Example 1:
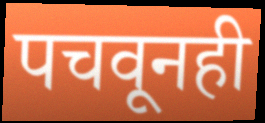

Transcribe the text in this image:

पचवूनही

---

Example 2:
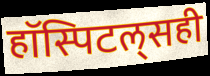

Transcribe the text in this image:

हॉस्पिटल्सही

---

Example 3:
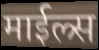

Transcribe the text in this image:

माईल्स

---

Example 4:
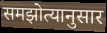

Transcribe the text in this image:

समझोत्यानुसार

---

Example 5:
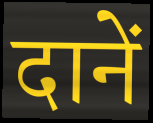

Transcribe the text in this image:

दानें